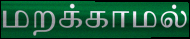
மறக்காமல்